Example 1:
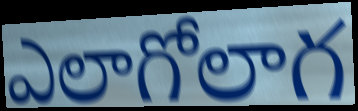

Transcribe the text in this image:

ఎలాగోలాగ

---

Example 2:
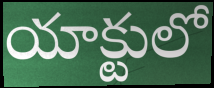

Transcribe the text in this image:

యాక్టులో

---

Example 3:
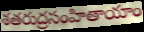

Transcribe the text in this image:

శతరుద్రసంహితాయాం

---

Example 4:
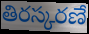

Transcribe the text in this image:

తిరస్కరణే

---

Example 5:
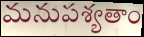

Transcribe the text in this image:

మనుపశ్యతాం